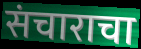
संचाराचा